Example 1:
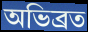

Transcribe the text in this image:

অভিব্রত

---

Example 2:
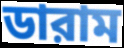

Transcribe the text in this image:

ডারাম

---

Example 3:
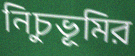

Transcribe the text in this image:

নিচুভূমির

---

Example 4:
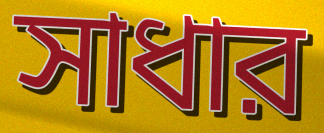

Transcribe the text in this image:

সাধার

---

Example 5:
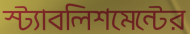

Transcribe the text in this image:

স্ট্যাবলিশমেন্টের